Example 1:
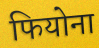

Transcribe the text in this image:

फियोना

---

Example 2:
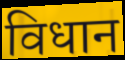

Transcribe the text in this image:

विधान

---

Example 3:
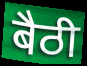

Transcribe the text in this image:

बैठी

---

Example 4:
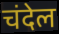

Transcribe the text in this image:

चंदेल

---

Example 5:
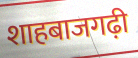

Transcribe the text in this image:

शाहबाजगढ़ी